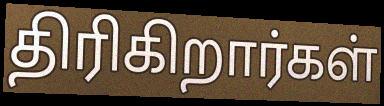
திரிகிறார்கள்